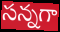
సన్నగా